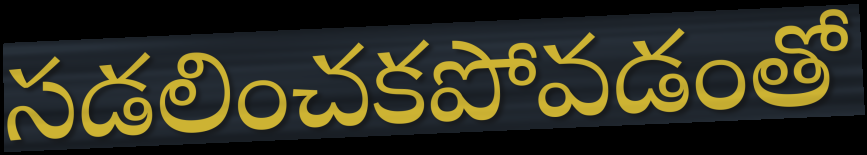
సడలించకపోవడంతో